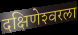
दक्षिणेश्वरला